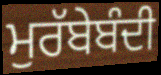
ਮੁਰੱਬੇਬੰਦੀ